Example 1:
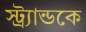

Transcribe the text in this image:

স্ট্র্যান্ডকে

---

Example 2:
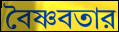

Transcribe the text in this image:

বৈষ্ণবতার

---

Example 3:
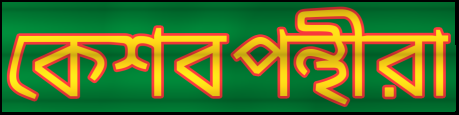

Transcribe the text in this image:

কেশবপন্থীরা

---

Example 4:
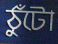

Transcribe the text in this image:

ঠুঁটো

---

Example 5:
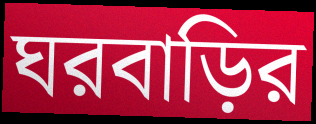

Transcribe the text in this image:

ঘরবাড়ির